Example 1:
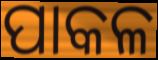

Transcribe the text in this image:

ପାକଳ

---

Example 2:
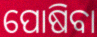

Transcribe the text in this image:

ପୋଷିବା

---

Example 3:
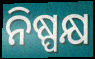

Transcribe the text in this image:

ନିଷ୍ପକ୍ଷ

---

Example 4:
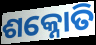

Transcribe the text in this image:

ଶକ୍ନୋତି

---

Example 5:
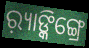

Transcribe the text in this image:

ର଼୍ୟାଙ୍କିଙ୍ଗ୍ରେ